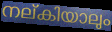
നല്‌കിയാലും